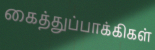
கைத்துப்பாக்கிகள்